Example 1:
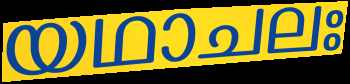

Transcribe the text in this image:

യഥാചലഃ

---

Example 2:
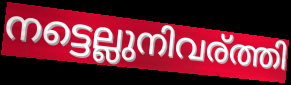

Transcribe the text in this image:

നട്ടെല്ലുനിവര്ത്തി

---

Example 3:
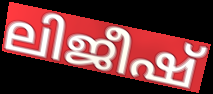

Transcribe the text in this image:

ലിജീഷ്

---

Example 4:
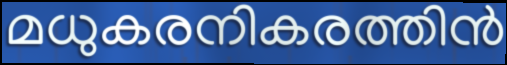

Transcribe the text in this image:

മധുകരനികരത്തിൻ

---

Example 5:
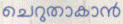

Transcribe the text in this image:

ചെറുതാകാൻ